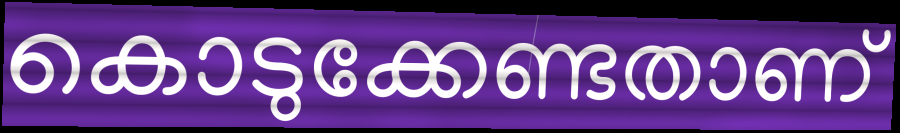
കൊടുക്കേണ്ടതാണ്